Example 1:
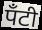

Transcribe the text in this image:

पॅंटी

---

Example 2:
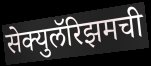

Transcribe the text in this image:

सेक्युलॅरिझमची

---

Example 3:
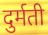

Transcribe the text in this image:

दुर्मती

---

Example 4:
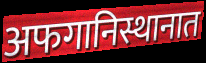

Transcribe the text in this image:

अफगानिस्थानात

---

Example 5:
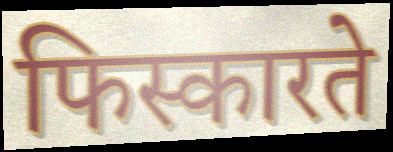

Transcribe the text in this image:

फिस्कारते